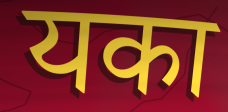
यका